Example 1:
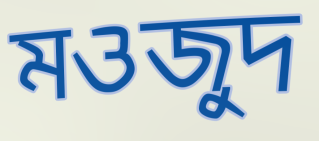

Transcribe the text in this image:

মওজুদ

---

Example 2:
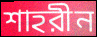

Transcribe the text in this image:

শাহরীন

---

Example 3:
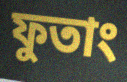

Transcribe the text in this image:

ফুতাং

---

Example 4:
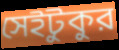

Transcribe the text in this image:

সেইটুকুর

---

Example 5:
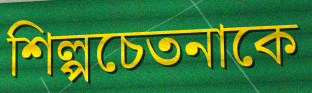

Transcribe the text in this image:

শিল্পচেতনাকে